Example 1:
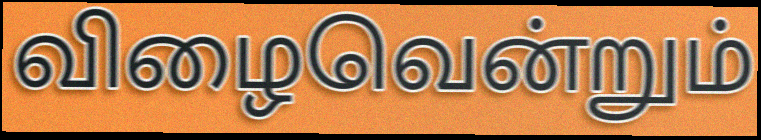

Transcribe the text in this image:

விழைவென்றும்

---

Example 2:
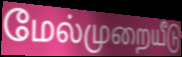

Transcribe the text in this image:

மேல்முறையீடு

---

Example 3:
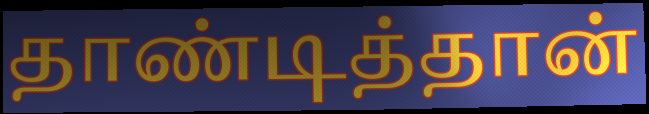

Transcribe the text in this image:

தாண்டித்தான்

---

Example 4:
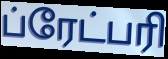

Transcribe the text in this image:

ப்ரேட்பரி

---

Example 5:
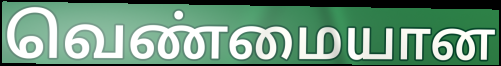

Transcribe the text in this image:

வெண்மையான